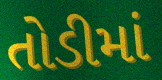
તોડીમાં